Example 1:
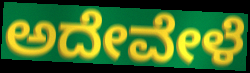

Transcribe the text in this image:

ಅದೇವೇಳೆ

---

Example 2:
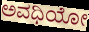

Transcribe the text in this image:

ಅವಧಿಯೋ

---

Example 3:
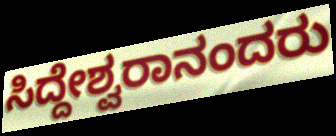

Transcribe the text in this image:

ಸಿದ್ದೇಶ್ವರಾನಂದರು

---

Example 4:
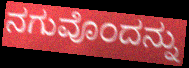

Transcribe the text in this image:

ನಗುವೊಂದನ್ನು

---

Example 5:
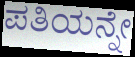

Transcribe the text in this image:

ಪತಿಯನ್ನೇ